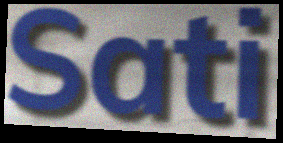
Sati